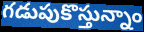
గడుపుకొస్తున్నాం